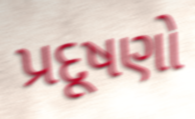
પ્રદૂષણો